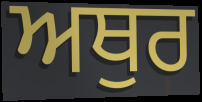
ਅਥੁਰ